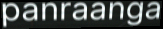
panraanga